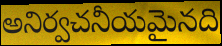
అనిర్వచనీయమైనది